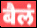
बैलं